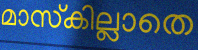
മാസ്‌കില്ലാതെ